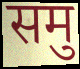
समु